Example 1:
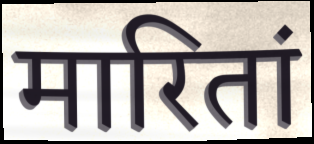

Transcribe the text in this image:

मारितां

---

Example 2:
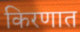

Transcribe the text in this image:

किरणात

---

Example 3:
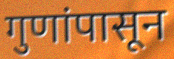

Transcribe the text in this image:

गुणांपासून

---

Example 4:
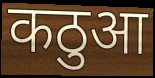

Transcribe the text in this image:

कठुआ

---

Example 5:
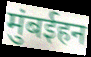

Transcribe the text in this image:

मुंबईहन